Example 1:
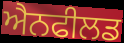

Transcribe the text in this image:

ਐਨਫੀਲਡ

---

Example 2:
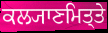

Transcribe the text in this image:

ਕਲ੍ਯਾਣਮਿਤ੍ਤੇ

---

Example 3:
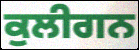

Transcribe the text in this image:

ਕੁਲੀਗਨ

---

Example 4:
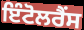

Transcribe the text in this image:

ਇੰਟੋਲਰੈਂਸ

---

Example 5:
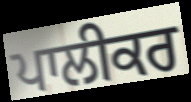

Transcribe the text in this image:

ਪਾਲੀਕਰ